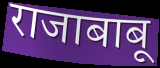
राजाबाबू